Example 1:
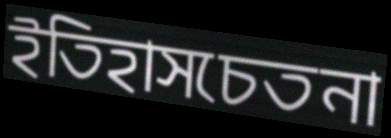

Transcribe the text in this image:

ইতিহাসচেতনা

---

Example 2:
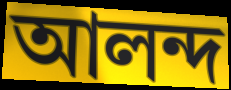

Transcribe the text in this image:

আলন্দ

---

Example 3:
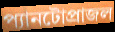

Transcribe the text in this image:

প্যানটোপ্রাজল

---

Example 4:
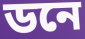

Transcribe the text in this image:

ডনে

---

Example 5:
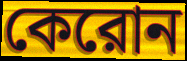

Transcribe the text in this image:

কেরোন